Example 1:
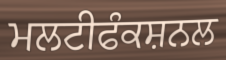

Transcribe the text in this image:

ਮਲਟੀਫੰਕਸ਼ਨਲ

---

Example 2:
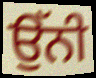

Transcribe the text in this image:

ਉੱਨੀ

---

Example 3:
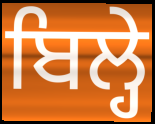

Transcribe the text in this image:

ਬਿਲ੍ਹੇ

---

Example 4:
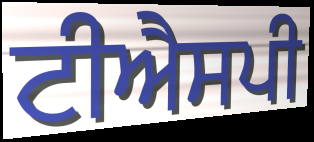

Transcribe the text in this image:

ਟੀਐਸਪੀ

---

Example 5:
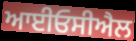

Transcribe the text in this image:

ਆਈਓਸੀਐਲ